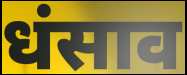
धंसाव